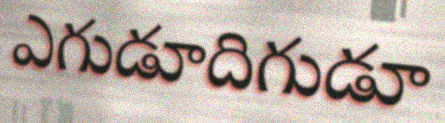
ఎగుడూదిగుడూ